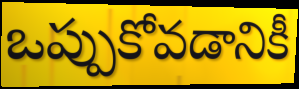
ఒప్పుకోవడానికీ